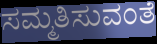
ಸಮ್ಮತಿಸುವಂತೆ